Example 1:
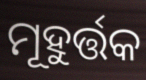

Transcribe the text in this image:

ମୂହୁର୍ତ୍ତକ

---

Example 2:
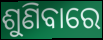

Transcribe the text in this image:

ଶୁଣିବାରେ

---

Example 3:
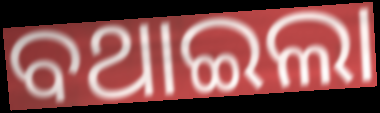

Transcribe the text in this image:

ବଥାଇଲା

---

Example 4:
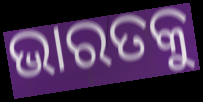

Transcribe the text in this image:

ଭାରତକୁ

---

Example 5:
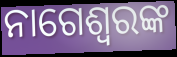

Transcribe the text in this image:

ନାଗେଶ୍ୱରଙ୍କ